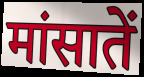
मांसातें